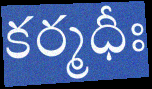
కర్మధీః